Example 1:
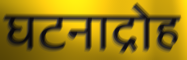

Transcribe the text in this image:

घटनाद्रोह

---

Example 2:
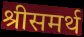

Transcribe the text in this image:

श्रीसमर्थ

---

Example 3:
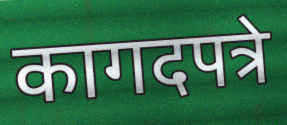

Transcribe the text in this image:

कागदपत्रे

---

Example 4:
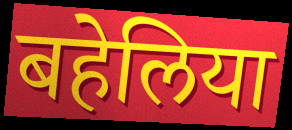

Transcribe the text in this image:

बहेलिया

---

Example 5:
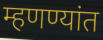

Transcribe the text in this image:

म्हणण्यांत